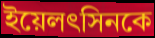
ইয়েলৎসিনকে